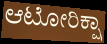
ಆಟೋರಿಕ್ಷಾ